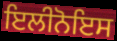
ਇਲੀਨੋਇਸ